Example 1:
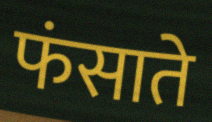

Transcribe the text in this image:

फंसाते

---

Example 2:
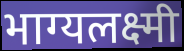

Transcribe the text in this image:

भाग्यलक्ष्मी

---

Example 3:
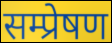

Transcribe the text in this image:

सम्प्रेषण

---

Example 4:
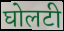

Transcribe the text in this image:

घोलटी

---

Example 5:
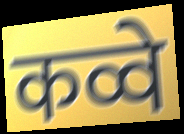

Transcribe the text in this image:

कव्वे